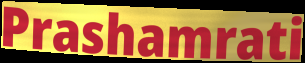
Prashamrati